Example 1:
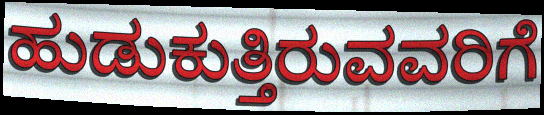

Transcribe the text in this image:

ಹುಡುಕುತ್ತಿರುವವರಿಗೆ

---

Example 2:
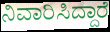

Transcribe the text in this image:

ನಿವಾರಿಸಿದ್ದಾರೆ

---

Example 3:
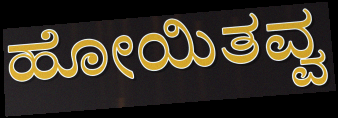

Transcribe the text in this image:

ಹೋಯಿತವ್ವ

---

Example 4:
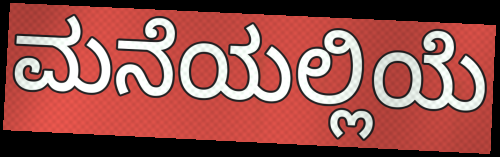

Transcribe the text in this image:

ಮನೆಯಲ್ಲಿಯೆ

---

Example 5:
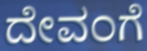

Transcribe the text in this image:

ದೇವಂಗೆ